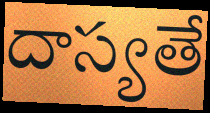
దాస్యతే